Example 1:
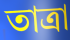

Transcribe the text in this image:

তাত্রা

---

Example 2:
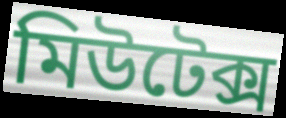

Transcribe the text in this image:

মিউটেক্স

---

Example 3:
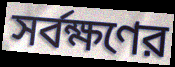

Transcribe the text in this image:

সর্বক্ষণের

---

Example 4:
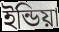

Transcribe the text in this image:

ইন্ডিয়া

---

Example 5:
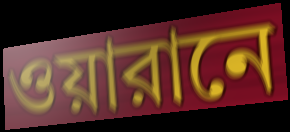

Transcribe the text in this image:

ওয়ারানে